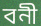
বনী